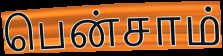
பென்சாம்